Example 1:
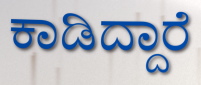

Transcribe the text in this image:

ಕಾಡಿದ್ದಾರೆ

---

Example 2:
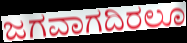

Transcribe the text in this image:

ಜಗವಾಗದಿರಲೂ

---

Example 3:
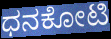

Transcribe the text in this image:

ಧನಕೋಟಿ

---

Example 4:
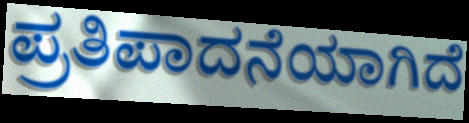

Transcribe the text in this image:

ಪ್ರತಿಪಾದನೆಯಾಗಿದೆ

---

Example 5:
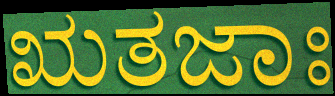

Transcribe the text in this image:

ಋತಜಾಃ